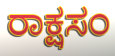
ರಾಕ್ಷಸಂ